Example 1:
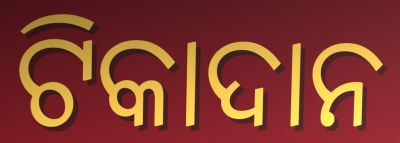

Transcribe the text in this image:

ଟିକାଦାନ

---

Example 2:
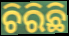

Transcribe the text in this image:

ଚିରିଛି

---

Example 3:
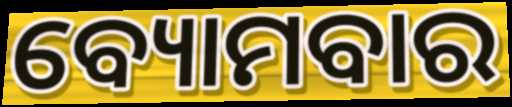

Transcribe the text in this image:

ବ୍ୟୋମବାର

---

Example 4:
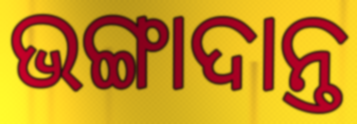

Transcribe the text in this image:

ଭଙ୍ଗାଦାନ୍ତ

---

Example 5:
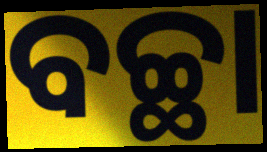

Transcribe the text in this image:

ବଚ୍ଛା